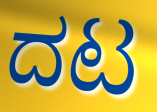
ದಟ